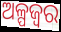
ଅଳ୍ପଜ୍ଵର